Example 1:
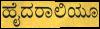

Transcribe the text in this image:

ಹೈದರಾಲಿಯೂ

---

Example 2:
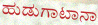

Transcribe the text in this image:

ಹುಡುಗಾಟಾನಾ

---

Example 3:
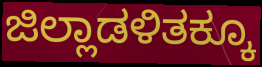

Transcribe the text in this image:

ಜಿಲ್ಲಾಡಳಿತಕ್ಕೂ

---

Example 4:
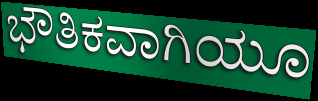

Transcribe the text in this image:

ಭೌತಿಕವಾಗಿಯೂ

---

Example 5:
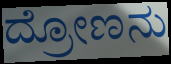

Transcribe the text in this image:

ದ್ರೋಣನು